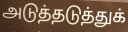
அடுத்தடுத்துக்